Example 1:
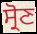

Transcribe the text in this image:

ਸ੍ਰੋਣ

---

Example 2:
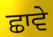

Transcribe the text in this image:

ਛਾਵੇ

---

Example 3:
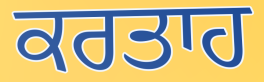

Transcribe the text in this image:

ਕਰਤਾਹ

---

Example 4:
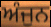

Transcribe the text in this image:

ਅੰਜੁਨ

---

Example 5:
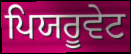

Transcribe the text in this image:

ਪਿਯਰੂਵੇਟ